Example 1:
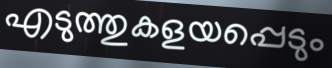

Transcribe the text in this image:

എടുത്തുകളയപ്പെടും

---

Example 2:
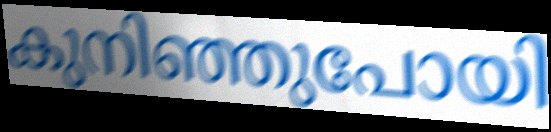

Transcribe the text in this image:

കുനിഞ്ഞുപോയി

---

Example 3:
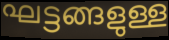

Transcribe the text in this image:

ഘട്ടങ്ങളുള്ള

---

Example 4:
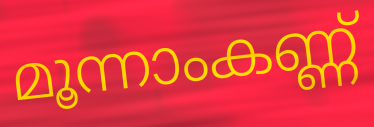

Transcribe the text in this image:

മൂന്നാംകണ്ണ്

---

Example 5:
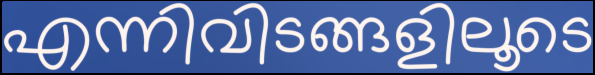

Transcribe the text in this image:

എന്നിവിടങ്ങളിലൂടെ